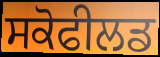
ਸਕੋਫੀਲਡ